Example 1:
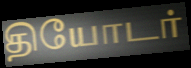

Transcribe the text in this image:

தியோடர்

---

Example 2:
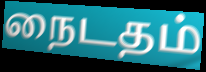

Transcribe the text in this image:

நைடதம்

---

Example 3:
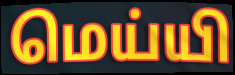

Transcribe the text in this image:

மெய்யி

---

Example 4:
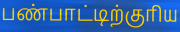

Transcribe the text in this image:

பண்பாட்டிற்குரிய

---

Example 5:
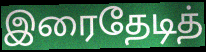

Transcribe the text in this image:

இரைதேடித்